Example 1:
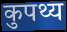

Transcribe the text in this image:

कुपथ्य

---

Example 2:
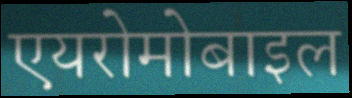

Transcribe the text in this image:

एयरोमोबाइल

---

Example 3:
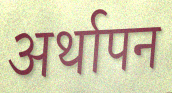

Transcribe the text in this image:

अर्थापन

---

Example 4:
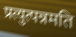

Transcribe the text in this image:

प्रत्युत्पन्नमति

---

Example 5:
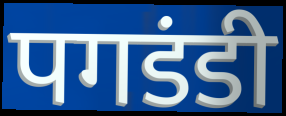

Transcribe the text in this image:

पगडंडी